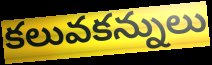
కలువకన్నులు